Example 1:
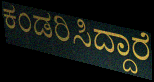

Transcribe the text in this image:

ಕಂಡರಿಸಿದ್ದಾರೆ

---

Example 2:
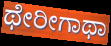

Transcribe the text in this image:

ಥೇರೀಗಾಥಾ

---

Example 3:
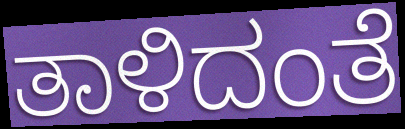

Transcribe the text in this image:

ತಾಳಿದಂತೆ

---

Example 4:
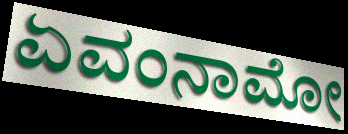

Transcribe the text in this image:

ಏವಂನಾಮೋ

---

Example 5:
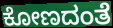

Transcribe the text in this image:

ಕೋಣದಂತೆ